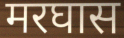
मरघास